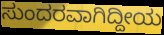
ಸುಂದರವಾಗಿದ್ದೀಯ